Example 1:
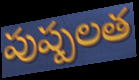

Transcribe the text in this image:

పుష్పలత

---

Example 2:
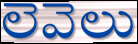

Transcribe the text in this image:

లెవెలు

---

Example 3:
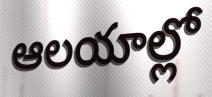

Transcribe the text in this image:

ఆలయాల్లో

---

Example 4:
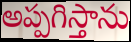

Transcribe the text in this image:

అప్పగిస్తాను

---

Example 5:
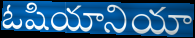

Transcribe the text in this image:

ఓషియానియా